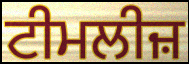
ਟੀਮਲੀਜ਼